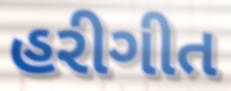
હરીગીત